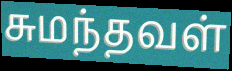
சுமந்தவள்